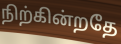
நிற்கின்றதே